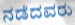
ನಡೆದವರು